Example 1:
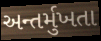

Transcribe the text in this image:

અન્તર્મુખતા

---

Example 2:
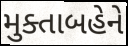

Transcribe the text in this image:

મુક્તાબહેને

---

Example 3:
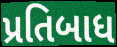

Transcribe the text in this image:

પ્રતિબાધ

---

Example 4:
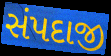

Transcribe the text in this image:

સંપદાજી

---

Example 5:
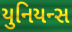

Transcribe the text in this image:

યુનિયન્સ